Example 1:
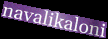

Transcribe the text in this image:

navalikaloni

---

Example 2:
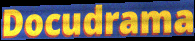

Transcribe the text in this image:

Docudrama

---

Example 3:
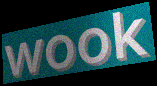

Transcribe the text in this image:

wook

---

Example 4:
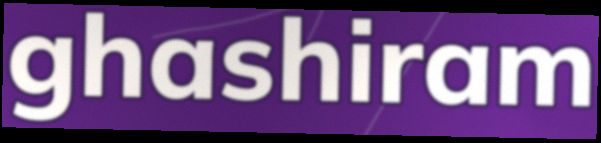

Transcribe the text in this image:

ghashiram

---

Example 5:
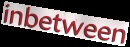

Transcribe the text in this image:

inbetween